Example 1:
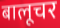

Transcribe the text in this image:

बालूचर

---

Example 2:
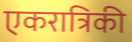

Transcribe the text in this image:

एकरात्रिकी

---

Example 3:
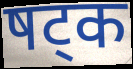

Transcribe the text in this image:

षट्क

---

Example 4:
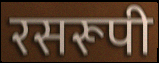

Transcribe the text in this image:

रसरूपी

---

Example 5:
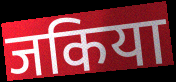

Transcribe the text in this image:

जकिया